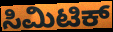
ಸಿಮಿಟಿಕ್